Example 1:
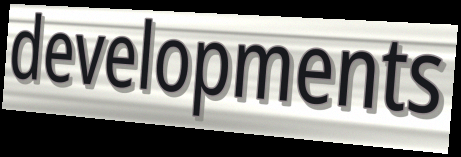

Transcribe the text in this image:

developments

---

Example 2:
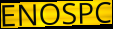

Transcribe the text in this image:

ENOSPC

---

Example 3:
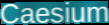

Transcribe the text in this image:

Caesium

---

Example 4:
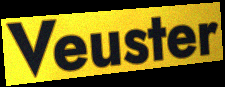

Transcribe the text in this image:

Veuster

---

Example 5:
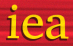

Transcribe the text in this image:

iea